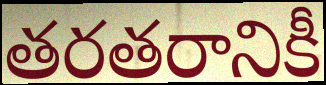
తరతరానికీ